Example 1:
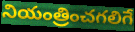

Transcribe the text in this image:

నియంత్రించగలిగే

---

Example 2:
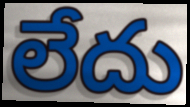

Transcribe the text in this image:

లేదు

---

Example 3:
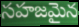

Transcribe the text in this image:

సహజమైన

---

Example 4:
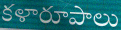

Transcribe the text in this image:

కళారూపాలు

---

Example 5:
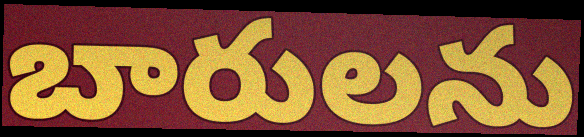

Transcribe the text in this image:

బారులను